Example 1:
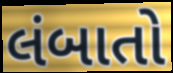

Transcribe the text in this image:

લંબાતો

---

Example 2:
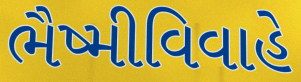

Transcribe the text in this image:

ભૈષ્મીવિવાહે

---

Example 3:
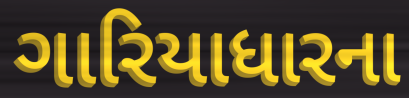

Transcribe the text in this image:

ગારિયાધારના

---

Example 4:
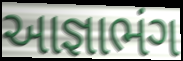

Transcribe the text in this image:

આજ્ઞાભંગ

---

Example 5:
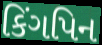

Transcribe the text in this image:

કિંગપિન